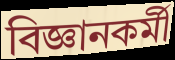
বিজ্ঞানকর্মী